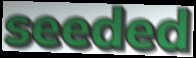
seeded